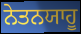
ਨੇਤਨਯਾਹੂ